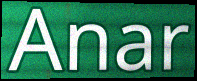
Anar